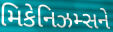
મિકેનિઝમ્સને